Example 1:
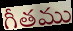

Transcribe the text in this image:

గీతము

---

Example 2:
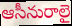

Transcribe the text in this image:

ఆసీనురాలై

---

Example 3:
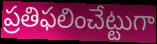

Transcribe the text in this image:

ప్రతిఫలించేట్టుగా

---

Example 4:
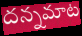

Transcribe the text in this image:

దన్నమాట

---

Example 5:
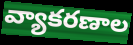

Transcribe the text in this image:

వ్యాకరణాల